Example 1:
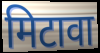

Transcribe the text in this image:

मिटावा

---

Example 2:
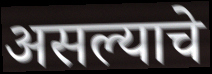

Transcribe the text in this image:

असल्याचे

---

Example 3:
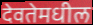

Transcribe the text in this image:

देवतेमधील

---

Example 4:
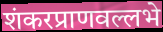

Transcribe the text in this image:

शंकरप्राणवल्लभे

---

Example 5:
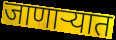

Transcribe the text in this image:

जाणाऱ्यात